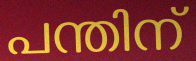
പന്തിന്